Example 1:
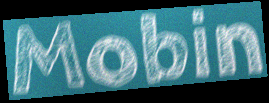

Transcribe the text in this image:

Mobin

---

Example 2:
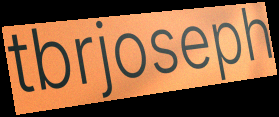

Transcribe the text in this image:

tbrjoseph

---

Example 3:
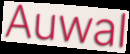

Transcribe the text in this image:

Auwal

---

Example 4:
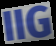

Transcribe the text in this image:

IIG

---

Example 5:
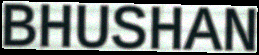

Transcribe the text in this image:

BHUSHAN